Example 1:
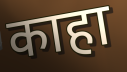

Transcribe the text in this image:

काहा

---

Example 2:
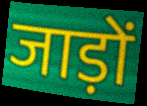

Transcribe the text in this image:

जाड़ों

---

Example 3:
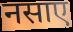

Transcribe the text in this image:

नसाए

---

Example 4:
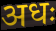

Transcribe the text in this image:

अधः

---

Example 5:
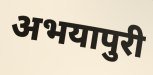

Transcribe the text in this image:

अभयापुरी